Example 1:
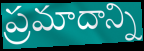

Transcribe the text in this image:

ప్రమాదాన్ని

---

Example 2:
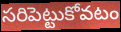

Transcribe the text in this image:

సరిపెట్టుకోవటం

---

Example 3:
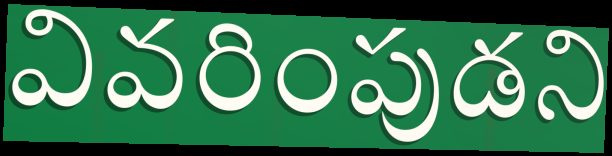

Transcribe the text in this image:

వివరింపుడని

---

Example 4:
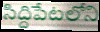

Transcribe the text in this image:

సిద్దిపేటలోని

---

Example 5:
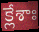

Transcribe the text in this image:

క్లేశాః